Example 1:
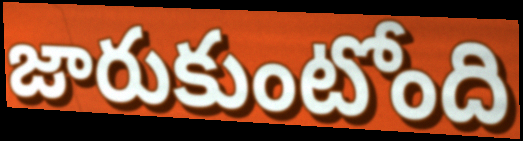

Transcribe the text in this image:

జారుకుంటోంది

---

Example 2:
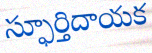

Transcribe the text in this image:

స్ఫూర్తిదాయక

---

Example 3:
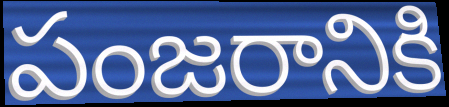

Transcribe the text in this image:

పంజరానికి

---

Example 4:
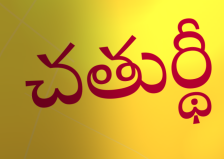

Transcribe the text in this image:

చతుర్థీ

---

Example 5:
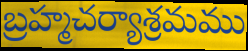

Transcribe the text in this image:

బ్రహ్మచర్యాశ్రమము